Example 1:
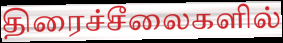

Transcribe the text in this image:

திரைச்சீலைகளில்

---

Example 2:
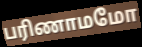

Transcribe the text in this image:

பரிணாமமோ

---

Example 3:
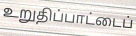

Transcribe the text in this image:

உறுதிப்பாட்டைப்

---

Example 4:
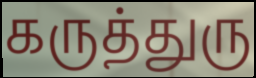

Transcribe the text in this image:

கருத்துரு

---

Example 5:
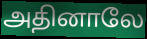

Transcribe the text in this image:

அதினாலே